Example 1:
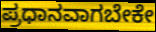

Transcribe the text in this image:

ಪ್ರಧಾನವಾಗಬೇಕೇ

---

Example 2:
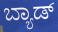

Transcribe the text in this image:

ಬ್ಯಾಡ್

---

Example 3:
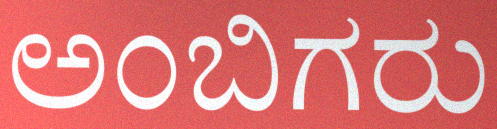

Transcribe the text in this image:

ಅಂಬಿಗರು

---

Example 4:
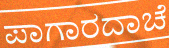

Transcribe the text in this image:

ಪಾಗಾರದಾಚೆ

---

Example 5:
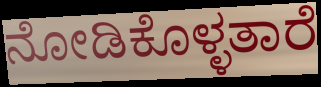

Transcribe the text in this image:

ನೋಡಿಕೊಳ್ಳತಾರೆ